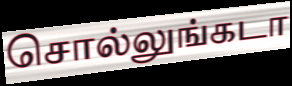
சொல்லுங்கடா